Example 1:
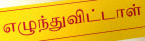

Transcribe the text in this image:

எழுந்துவிட்டாள்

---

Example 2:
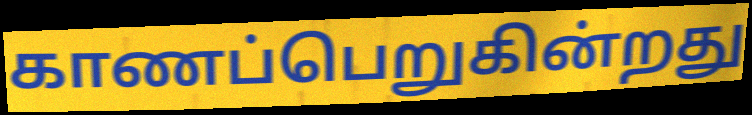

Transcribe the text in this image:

காணப்பெறுகின்றது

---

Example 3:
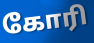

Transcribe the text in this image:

கோரி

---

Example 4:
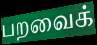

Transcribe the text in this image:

பறவைக்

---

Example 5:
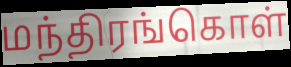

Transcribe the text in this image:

மந்திரங்கொள்